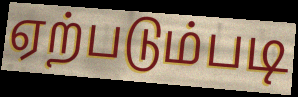
ஏற்படும்படி